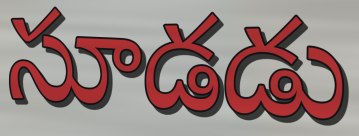
సూడడు